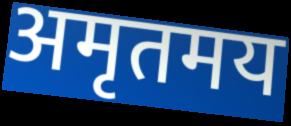
अमृतमय